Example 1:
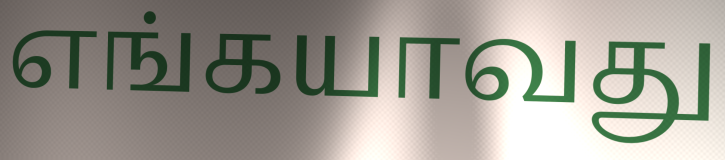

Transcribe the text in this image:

எங்கயாவது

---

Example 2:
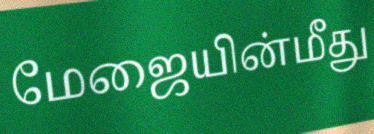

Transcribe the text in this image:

மேஜையின்மீது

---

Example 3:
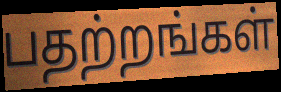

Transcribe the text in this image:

பதற்றங்கள்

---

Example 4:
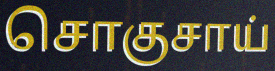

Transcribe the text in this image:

சொகுசாய்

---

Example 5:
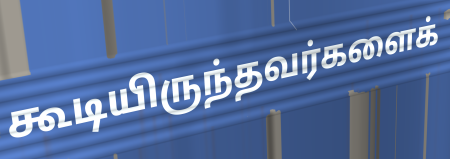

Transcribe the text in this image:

கூடியிருந்தவர்களைக்